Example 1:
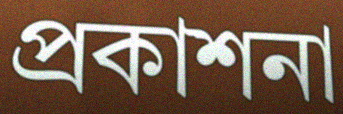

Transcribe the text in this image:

প্ৰকাশনা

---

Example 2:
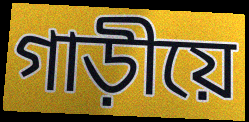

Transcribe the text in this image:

গাড়ীয়ে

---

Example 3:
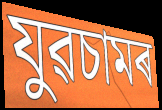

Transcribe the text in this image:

যুৱচামৰ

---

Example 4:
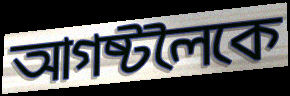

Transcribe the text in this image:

আগষ্টলৈকে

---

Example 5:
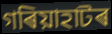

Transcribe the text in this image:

গৰিয়াহাটৰ